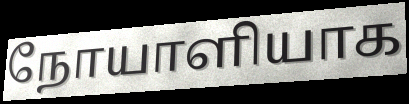
நோயாளியாக